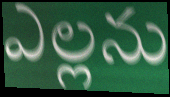
ఎల్లను